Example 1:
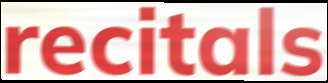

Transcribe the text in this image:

recitals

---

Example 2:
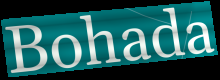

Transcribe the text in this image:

Bohada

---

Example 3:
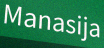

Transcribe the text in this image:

Manasija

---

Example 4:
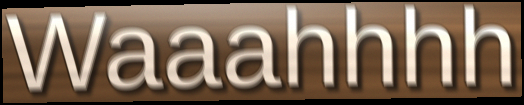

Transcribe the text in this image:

Waaahhhh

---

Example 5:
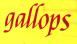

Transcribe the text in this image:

gallops